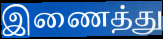
இணைத்து